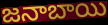
జనాబాయి